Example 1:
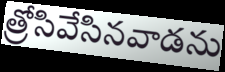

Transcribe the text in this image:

త్రోసివేసినవాడను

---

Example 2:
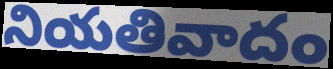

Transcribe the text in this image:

నియతివాదం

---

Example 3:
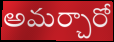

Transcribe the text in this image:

అమర్చారో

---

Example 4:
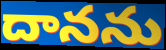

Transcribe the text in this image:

దానను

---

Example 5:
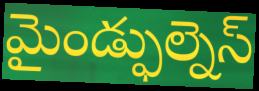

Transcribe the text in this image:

మైండ్ఫుల్నెస్